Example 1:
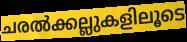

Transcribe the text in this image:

ചരൽക്കല്ലുകളിലൂടെ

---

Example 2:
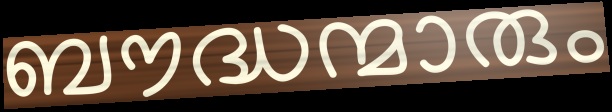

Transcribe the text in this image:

ബൗദ്ധന്മാരും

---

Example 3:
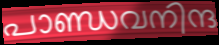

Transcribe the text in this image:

പാണ്ഡവനിന്ദ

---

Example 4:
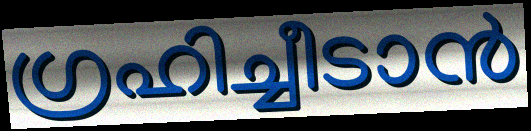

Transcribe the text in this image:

ഗ്രഹിച്ചീടാൻ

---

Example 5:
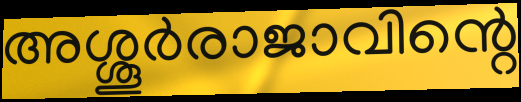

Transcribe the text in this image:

അശ്ശൂർരാജാവിന്റെ